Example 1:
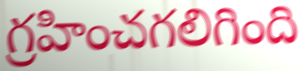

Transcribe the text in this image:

గ్రహించగలిగింది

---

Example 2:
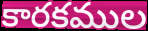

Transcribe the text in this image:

కారకముల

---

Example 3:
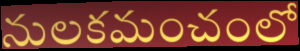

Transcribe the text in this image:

నులకమంచంలో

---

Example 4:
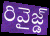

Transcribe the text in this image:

రివైజ్డ్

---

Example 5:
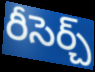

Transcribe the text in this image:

రీసెర్చ్